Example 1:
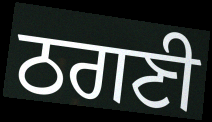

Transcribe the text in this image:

ਠਗਣੀ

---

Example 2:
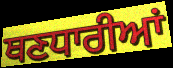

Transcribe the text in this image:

ਥਣਧਾਰੀਆਂ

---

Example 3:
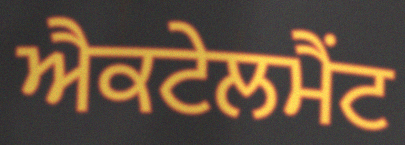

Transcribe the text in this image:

ਐਕਟੇਲਮੈਂਟ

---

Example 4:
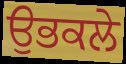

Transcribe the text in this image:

ਉਭਕਲੇ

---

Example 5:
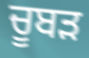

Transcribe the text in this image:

ਚੂਬੜ